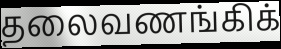
தலைவணங்கிக்